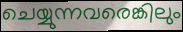
ചെയ്യുന്നവരെങ്കിലും